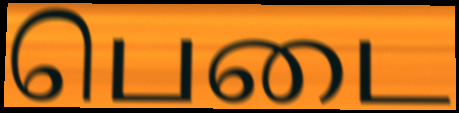
பெடை